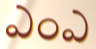
ఎంఎ